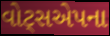
વોટ્સએપના